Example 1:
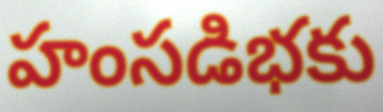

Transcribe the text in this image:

హంసడిభకు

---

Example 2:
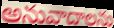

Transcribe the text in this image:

అనువాదాలను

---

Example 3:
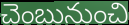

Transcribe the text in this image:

చెంబునుంచి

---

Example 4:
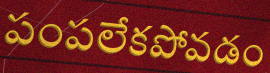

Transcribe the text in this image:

పంపలేకపోవడం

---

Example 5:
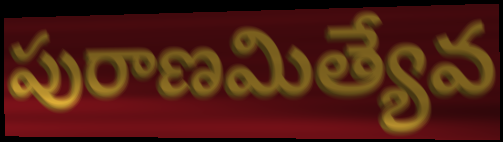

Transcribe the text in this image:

పురాణమిత్యేవ